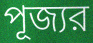
পূজ্যর